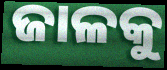
ଜାଳକୁ